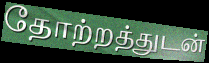
தோற்றத்துடன்